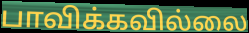
பாவிக்கவில்லை